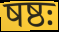
षष्ठः